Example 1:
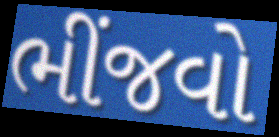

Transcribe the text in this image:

ભીંજવો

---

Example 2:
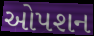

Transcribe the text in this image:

ઓપશન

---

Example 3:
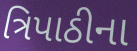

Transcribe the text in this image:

ત્રિપાઠીના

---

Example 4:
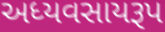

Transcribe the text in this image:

અધ્યવસાયરૂપ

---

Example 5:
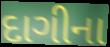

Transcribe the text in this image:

દાગીના